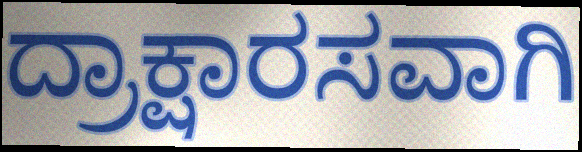
ದ್ರಾಕ್ಷಾರಸವಾಗಿ